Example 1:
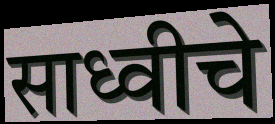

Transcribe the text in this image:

साध्वीचे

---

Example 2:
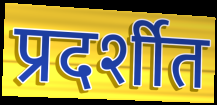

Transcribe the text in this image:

प्रदर्शीत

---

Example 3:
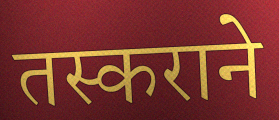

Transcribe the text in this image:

तस्कराने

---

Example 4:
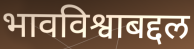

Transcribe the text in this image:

भावविश्वाबद्दल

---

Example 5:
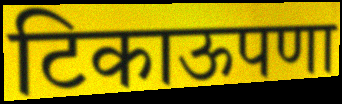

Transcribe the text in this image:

टिकाऊपणा